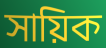
সায়িক